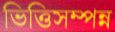
ভিত্তিসম্পন্ন